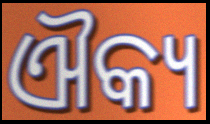
ଐକ୍ୟ